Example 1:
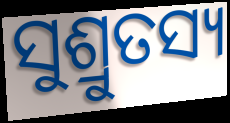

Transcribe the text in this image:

ସୁଶ୍ରୁତସ୍ୟ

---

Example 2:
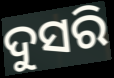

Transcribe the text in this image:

ଦୁସରି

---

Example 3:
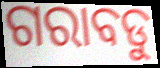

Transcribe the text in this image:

ଗରାବଡୁ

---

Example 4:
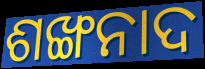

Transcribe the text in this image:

ଶଙ୍ଖନାଦ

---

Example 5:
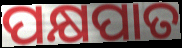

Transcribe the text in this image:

ପକ୍ଷପାତ